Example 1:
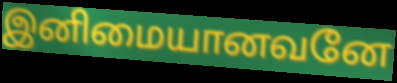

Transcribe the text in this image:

இனிமையானவனே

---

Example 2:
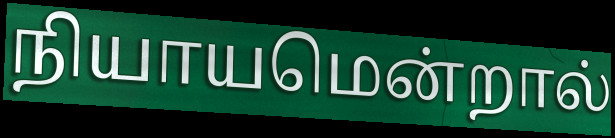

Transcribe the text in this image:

நியாயமென்றால்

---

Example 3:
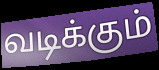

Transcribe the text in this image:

வடிக்கும்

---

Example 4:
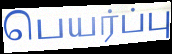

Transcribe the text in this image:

பெயர்ப்பு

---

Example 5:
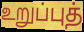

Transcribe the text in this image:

உறுப்புத்